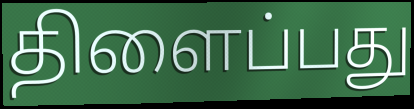
திளைப்பது